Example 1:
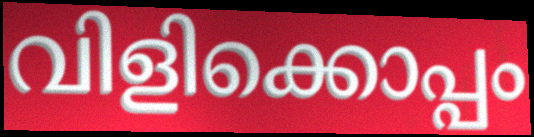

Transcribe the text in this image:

വിളിക്കൊപ്പം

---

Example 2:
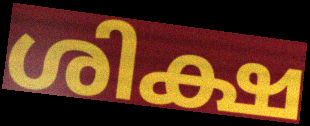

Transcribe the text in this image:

ശിക്ഷ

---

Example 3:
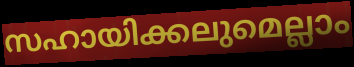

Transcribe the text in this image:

സഹായിക്കലുമെല്ലാം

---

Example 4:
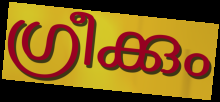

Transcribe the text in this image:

ഗ്രീക്കും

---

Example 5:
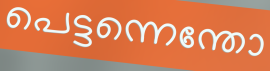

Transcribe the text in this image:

പെട്ടന്നെന്തോ